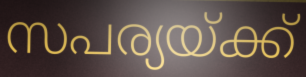
സപര്യയ്ക്ക്